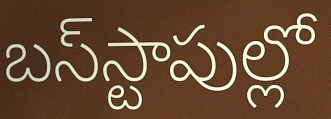
బస్‌స్టాపుల్లో